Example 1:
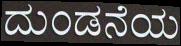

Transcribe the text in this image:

ದುಂಡನೆಯ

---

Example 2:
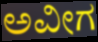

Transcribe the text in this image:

ಅವೀಗ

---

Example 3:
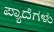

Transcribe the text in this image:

ಪ್ಯಾದೆಗಳು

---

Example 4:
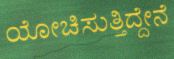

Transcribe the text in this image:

ಯೋಚಿಸುತ್ತಿದ್ದೇನೆ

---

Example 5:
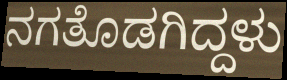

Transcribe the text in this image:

ನಗತೊಡಗಿದ್ದಳು